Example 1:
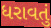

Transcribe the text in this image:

ધરાવતું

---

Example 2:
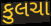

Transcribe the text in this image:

કુલચા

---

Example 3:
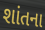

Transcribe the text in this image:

શાંતના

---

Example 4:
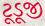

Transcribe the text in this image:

ટૂડૂજી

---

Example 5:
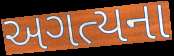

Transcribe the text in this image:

અગત્યના